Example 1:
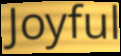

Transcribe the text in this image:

Joyful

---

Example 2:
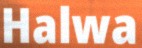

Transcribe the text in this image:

Halwa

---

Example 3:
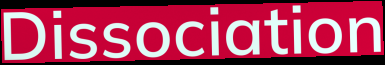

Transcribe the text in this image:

Dissociation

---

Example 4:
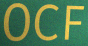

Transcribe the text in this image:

OCF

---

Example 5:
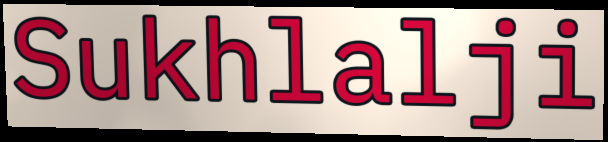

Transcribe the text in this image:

Sukhlalji